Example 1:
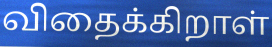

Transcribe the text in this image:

விதைக்கிறாள்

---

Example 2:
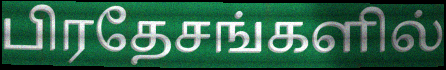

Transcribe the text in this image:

பிரதேசங்களில்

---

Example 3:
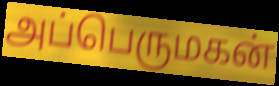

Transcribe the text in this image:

அப்பெருமகன்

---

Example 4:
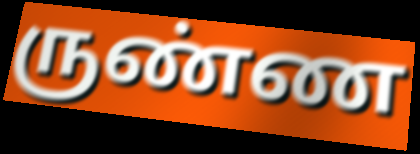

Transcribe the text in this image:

ருண்ண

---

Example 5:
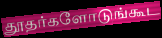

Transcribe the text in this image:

தூதர்களோடுங்கூட